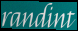
randint